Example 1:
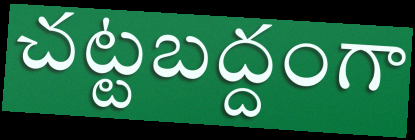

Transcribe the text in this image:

చట్టబద్దంగా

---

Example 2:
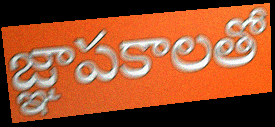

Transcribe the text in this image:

జ్ఞాపకాలతో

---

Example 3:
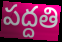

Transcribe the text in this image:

పద్దతి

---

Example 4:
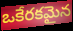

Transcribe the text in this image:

ఒకేరకమైన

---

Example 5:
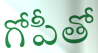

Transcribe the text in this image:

గోపీతో